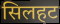
सिलहट